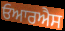
ਓਆਰਐਸ